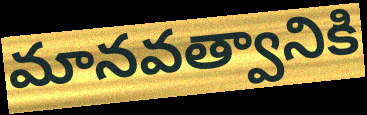
మానవత్వానికి